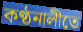
কণ্ঠনালীতে